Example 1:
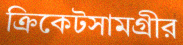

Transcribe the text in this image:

ক্রিকেটসামগ্রীর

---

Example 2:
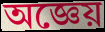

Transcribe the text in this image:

অজ্ঞেয়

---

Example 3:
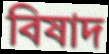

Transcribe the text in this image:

বিষাদ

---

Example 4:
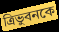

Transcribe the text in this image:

ত্রিভুবনকে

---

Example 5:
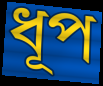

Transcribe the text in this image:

ধূপ